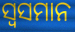
ସ୍ୱସମାନ